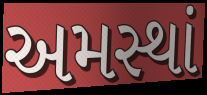
અમસ્થાં